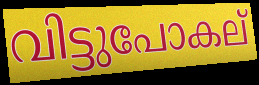
വിട്ടുപോകല്